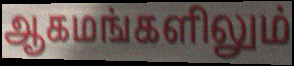
ஆகமங்களிலும்